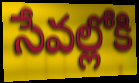
సేవల్లోకి